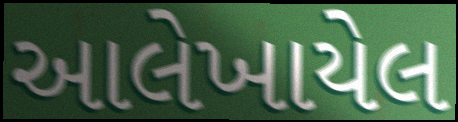
આલેખાયેલ